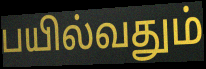
பயில்வதும்